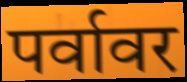
पर्वावर